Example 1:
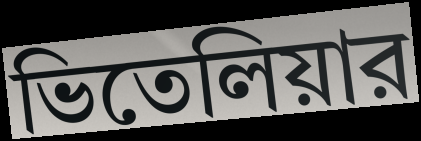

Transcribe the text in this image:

ভিতেলিয়ার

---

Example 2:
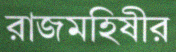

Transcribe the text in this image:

রাজমহিষীর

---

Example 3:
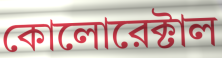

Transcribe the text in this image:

কোলোরেক্টাল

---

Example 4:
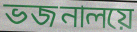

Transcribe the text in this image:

ভজনালয়ে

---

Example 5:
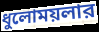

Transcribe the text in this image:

ধুলোময়লার